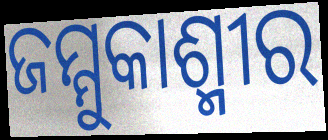
ଜମ୍ମୁକାଶ୍ମୀର